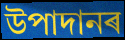
উপাদানৰ